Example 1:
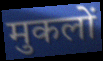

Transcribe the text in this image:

मुकलों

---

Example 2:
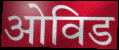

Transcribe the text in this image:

ओविड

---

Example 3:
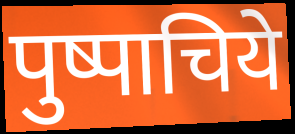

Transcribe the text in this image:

पुष्पाचिये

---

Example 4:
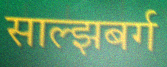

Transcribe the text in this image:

साल्झबर्ग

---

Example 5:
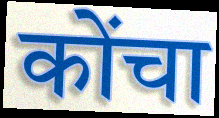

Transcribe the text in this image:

कोंचा